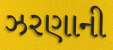
ઝરણાની